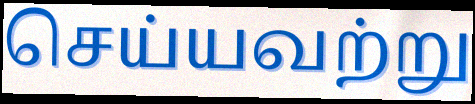
செய்யவற்று